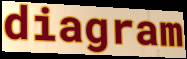
diagram